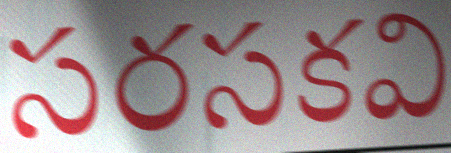
సరసకవి